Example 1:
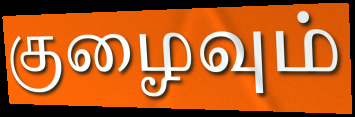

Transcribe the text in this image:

குழைவும்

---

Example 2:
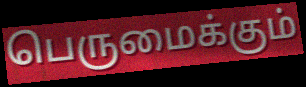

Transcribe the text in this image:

பெருமைக்கும்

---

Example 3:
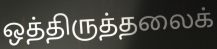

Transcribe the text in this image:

ஒத்திருத்தலைக்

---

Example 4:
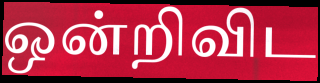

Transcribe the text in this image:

ஒன்றிவிட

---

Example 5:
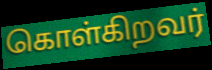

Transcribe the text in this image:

கொள்கிறவர்